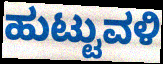
ಹುಟ್ಟುವಳಿ